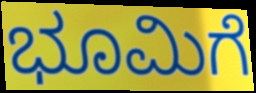
ಭೂಮಿಗೆ